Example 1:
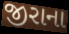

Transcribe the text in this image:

જીરાના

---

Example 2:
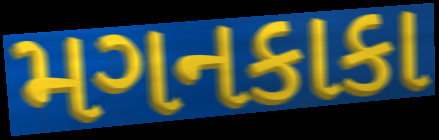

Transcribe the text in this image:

મગનકાકા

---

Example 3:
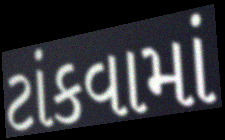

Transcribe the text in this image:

ટાંકવામાં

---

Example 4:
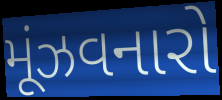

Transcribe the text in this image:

મૂંઝવનારો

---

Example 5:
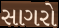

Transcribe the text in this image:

સાગરો